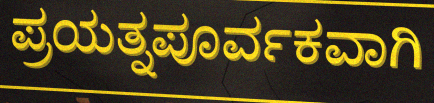
ಪ್ರಯತ್ನಪೂರ್ವಕವಾಗಿ